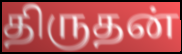
திருதன்